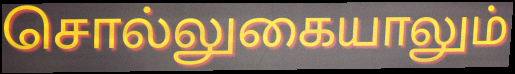
சொல்லுகையாலும்